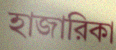
হাজারিকা